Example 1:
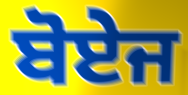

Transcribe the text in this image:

ਬੋਏਜ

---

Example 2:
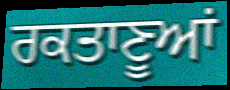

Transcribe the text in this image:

ਰਕਤਾਣੂਆਂ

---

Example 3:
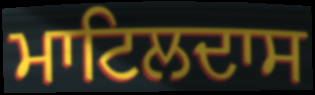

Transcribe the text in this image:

ਮਾਟਿਲਦਾਸ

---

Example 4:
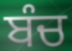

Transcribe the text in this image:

ਬੰਚ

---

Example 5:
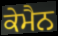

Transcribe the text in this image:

ਕੇਮੈਨ